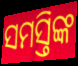
ସମସ୍ତିଙ୍କ